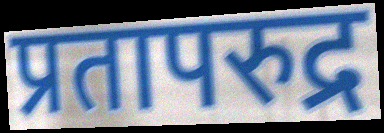
प्रतापरुद्र